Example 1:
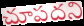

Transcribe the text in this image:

చూపదని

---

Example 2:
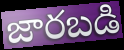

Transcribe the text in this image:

జారబడి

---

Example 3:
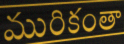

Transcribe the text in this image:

మురికంతా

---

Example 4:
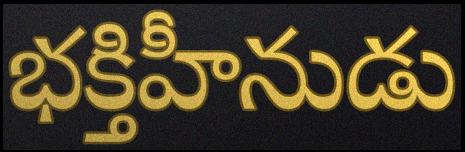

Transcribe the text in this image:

భక్తిహీనుడు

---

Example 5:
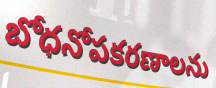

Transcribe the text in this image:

బోధనోపకరణాలను